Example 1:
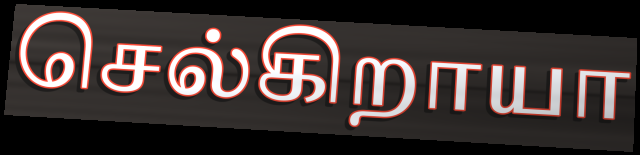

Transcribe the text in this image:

செல்கிறாயா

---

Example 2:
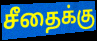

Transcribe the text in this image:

சீதைக்கு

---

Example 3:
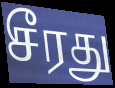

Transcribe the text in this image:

சீரது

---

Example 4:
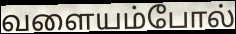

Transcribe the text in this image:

வளையம்போல்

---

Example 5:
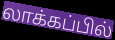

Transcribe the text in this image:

லாக்கப்பில்